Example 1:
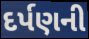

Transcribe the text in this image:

દર્પણની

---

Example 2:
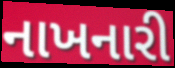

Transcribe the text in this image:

નાખનારી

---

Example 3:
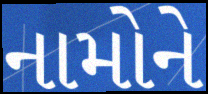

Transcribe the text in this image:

નામોને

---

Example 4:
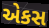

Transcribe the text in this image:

એકસ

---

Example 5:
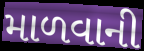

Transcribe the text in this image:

માળવાની